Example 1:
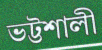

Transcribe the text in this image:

ভট্টশালী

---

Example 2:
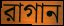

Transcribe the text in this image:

রাগান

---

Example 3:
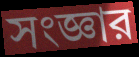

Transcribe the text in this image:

সংজ্ঞার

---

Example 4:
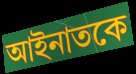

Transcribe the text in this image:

আইনাতকে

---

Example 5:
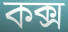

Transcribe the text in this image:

কক্স